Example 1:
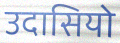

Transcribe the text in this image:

उदासियो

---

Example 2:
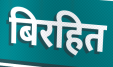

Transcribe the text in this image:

बिरहित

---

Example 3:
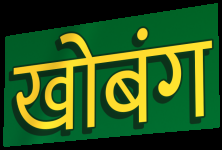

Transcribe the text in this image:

खोबंग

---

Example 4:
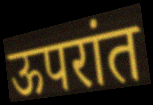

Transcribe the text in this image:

ऊपरांत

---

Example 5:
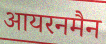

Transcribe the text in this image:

आयरनमैन